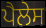
ਪੈਲੇਸ